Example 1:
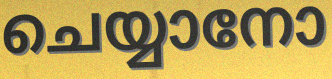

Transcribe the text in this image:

ചെയ്യാനോ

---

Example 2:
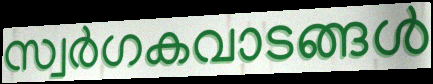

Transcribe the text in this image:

സ്വർഗകവാടങ്ങൾ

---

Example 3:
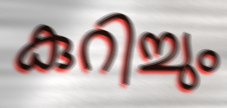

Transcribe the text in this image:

കുറിച്ചും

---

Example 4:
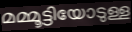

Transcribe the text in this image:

മമ്മൂട്ടിയോടുള്ള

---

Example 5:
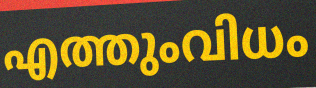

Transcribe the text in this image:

എത്തുംവിധം